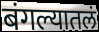
बंगल्यातलं